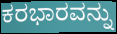
ಕರಭಾರವನ್ನು